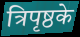
त्रिपृष्ठके